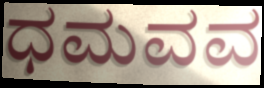
ಧಮವವ